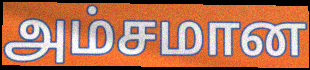
அம்சமான